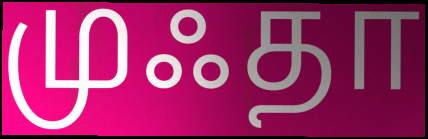
முஃதா